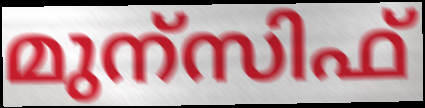
മുന്സിഫ്